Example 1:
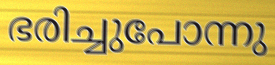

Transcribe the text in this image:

ഭരിച്ചുപോന്നു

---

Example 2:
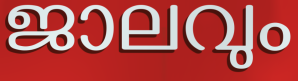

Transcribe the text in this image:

ജാലവും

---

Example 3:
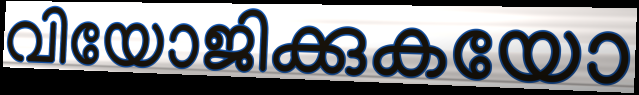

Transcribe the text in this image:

വിയോജിക്കുകയോ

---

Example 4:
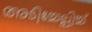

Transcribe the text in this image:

അടിച്ചേല്പിച്ച്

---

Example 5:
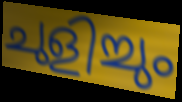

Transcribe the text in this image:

ചുളിച്ചും